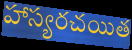
హాస్యరచయిత